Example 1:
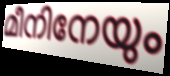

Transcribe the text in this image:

മീനിനേയും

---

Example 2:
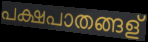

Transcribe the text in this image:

പക്ഷപാതങ്ങള്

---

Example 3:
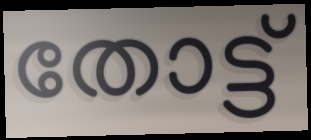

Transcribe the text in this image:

തോട്ട്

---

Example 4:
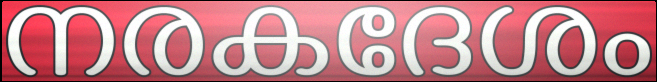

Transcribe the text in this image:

നരകദേശം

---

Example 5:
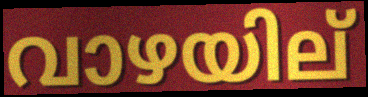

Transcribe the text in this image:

വാഴയില്